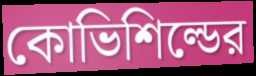
কোভিশিল্ডের